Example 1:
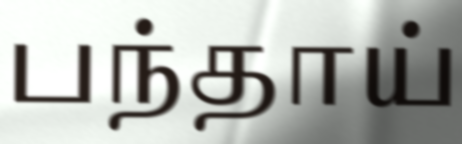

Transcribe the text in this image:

பந்தாய்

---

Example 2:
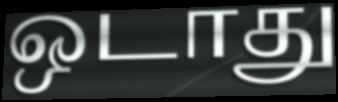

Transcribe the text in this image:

ஒடாது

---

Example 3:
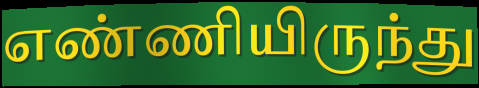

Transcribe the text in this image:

எண்ணியிருந்து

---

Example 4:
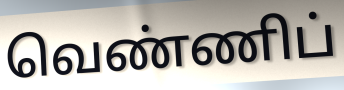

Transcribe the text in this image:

வெண்ணிப்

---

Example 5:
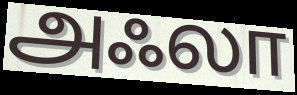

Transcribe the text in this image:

அஃலா